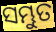
ସମ୍ଭୁତ